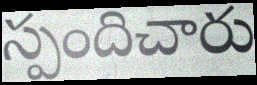
స్పందిచారు